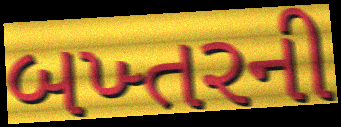
બખ્તરની